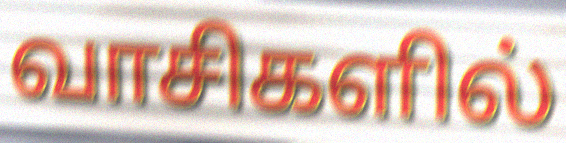
வாசிகளில்